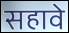
सहावे